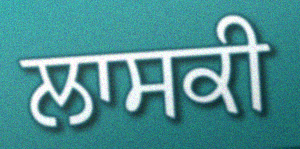
ਲਾਸਕੀ